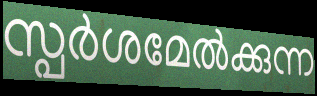
സ്പർശമേൽക്കുന്ന